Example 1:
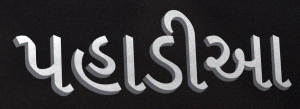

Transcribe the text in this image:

પહાડીઆ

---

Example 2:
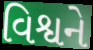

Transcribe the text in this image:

વિશ્વને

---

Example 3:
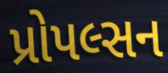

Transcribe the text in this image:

પ્રોપલ્સન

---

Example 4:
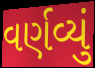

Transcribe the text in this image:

વર્ણવ્યું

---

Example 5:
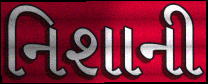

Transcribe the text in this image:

નિશાની